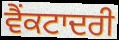
ਵੈਂਕਟਾਦਰੀ